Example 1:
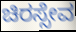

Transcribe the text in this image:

ಚಿರಸ್ಸೇವ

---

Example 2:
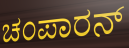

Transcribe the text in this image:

ಚಂಪಾರನ್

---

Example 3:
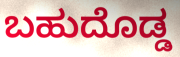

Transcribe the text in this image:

ಬಹುದೊಡ್ಡ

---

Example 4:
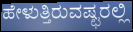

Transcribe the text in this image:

ಹೇಳುತ್ತಿರುವಷ್ಟರಲ್ಲಿ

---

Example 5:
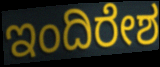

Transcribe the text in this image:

ಇಂದಿರೇಶ